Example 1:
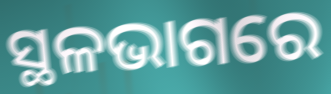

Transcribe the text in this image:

ସ୍ଥଳଭାଗରେ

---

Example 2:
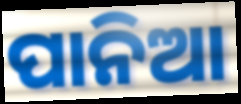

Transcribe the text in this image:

ପାନିଆ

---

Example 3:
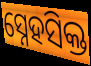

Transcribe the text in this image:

ସ୍ନେହସିକ୍ତ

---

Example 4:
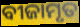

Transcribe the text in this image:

ବୀଜାମୃତ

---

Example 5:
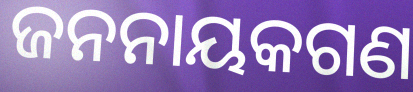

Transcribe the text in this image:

ଜନନାୟକଗଣ